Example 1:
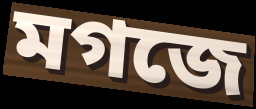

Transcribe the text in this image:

মগজে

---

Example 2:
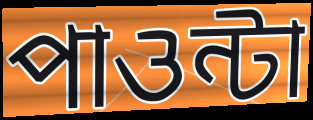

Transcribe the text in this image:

পাওন্টা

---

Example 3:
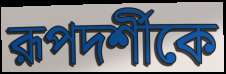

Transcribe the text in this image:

রূপদর্শীকে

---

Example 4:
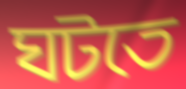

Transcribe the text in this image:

ঘটতে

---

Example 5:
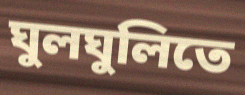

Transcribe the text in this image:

ঘুলঘুলিতে